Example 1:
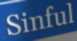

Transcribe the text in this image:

Sinful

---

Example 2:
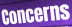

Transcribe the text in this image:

Concerns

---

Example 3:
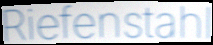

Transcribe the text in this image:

Riefenstahl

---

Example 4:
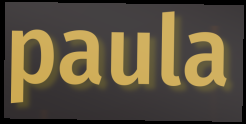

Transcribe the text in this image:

paula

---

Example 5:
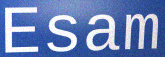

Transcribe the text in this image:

Esam